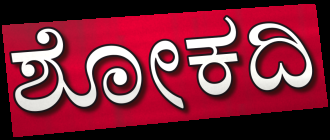
ಶೋಕದಿ